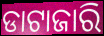
ଡାଟାଜାରି